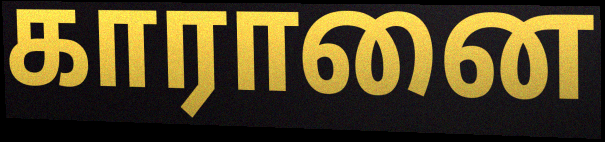
காரானை